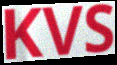
KVS